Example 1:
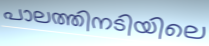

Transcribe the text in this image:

പാലത്തിനടിയിലെ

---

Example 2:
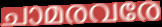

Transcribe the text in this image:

ചാമരവരേ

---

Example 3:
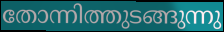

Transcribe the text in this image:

തോന്നിത്തുടങ്ങുന്നു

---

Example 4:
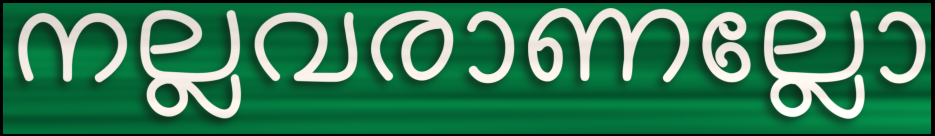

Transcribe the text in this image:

നല്ലവരാണല്ലോ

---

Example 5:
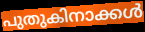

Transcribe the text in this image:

പുതുകിനാക്കൾ